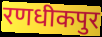
रणधीकपुर